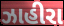
ઝાહીરા